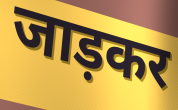
जाड़कर